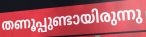
തണൂപ്പുണ്ടായിരുന്നു